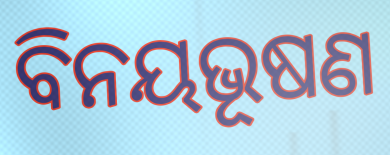
ବିନୟଭୂଷଣ